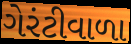
ગેરંટીવાળા